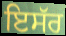
ਇਸੱਰ